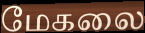
மேகலை